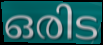
ഒരിട